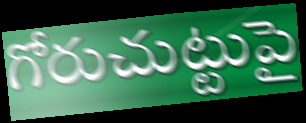
గోరుచుట్టుపై